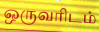
ஒருவரிடம்